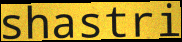
shastri